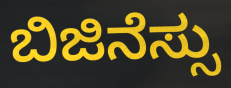
ಬಿಜಿನೆಸ್ಸು